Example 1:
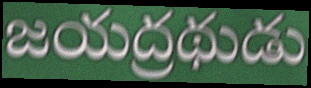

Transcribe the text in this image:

జయద్రథుడు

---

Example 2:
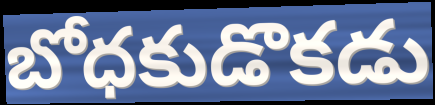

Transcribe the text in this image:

బోధకుడొకడు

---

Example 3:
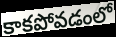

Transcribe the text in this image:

కాకపోవడంలో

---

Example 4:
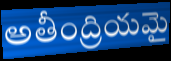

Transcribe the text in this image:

అతీంద్రియమై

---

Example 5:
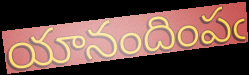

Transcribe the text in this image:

యానందింపఁ